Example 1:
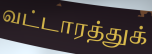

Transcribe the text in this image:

வட்டாரத்துக்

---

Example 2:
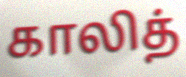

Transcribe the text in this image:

காலித்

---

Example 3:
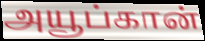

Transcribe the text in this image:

அயூப்கான்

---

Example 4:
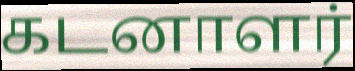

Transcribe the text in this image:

கடனாளர்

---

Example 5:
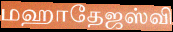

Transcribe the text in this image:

மஹாதேஜஸ்வி